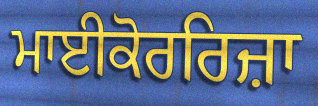
ਮਾਈਕੋਰਰਿਜ਼ਾ